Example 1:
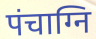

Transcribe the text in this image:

पंचाग्नि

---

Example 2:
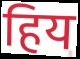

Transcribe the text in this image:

हिय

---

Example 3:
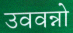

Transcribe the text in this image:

उववन्नो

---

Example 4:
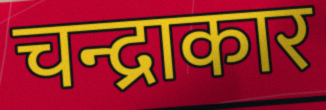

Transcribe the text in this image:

चन्द्राकार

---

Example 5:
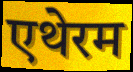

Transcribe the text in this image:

एथेरम